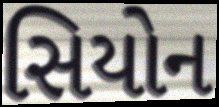
સિયોન